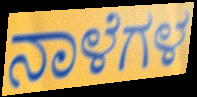
ನಾಳೆಗಳ